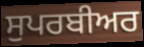
ਸੁਪਰਬੀਅਰ